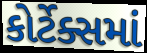
કોર્ટેક્સમાં